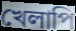
খেলাপি